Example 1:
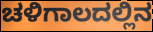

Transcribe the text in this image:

ಚಳಿಗಾಲದಲ್ಲಿನ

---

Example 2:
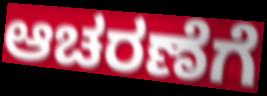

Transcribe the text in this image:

ಆಚರಣೆಗೆ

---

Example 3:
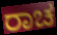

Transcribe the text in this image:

ರಾಚ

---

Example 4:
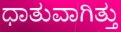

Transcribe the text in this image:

ಧಾತುವಾಗಿತ್ತು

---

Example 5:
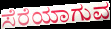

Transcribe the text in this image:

ಸೆರೆಯಾಗುವ